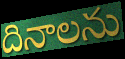
దినాలను